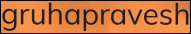
gruhapravesh